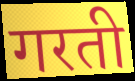
गरती